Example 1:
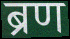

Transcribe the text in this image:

ब्रण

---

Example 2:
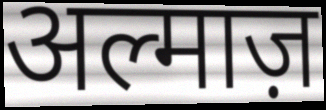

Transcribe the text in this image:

अल्माज़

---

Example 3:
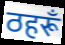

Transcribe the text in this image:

ठहरूँ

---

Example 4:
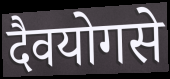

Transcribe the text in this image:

दैवयोगसे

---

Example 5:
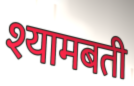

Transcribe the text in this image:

श्यामबती